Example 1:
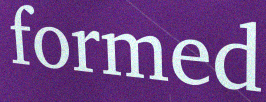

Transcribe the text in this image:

formed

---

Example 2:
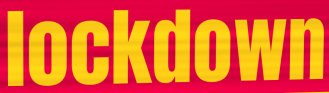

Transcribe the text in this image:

lockdown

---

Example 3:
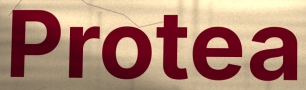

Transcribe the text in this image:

Protea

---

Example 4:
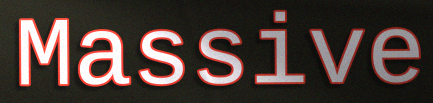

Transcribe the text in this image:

Massive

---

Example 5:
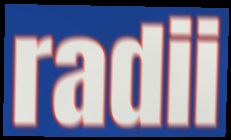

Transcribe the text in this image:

radii